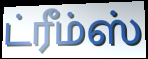
ட்ரீம்ஸ்